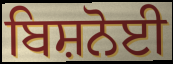
ਬਿਸ਼ਨੋਈ